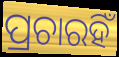
ପ୍ରଚାରହିଁ